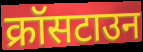
क्रॉसटाउन